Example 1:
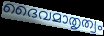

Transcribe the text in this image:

ദൈവമാതൃത്വം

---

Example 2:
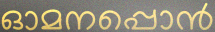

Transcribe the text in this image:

ഓമനപ്പൊൻ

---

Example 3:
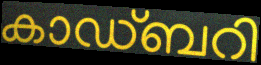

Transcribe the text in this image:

കാഡ്ബറി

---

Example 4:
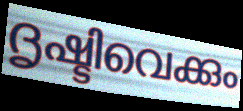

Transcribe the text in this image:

ദൃഷ്ടിവെക്കും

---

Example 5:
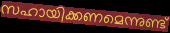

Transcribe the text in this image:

സഹായിക്കണമെന്നുണ്ട്